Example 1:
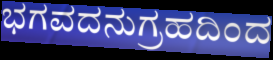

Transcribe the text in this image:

ಭಗವದನುಗ್ರಹದಿಂದ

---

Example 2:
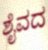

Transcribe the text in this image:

ಶೈವದ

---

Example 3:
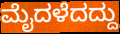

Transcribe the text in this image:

ಮೈದಳೆದದ್ದು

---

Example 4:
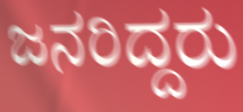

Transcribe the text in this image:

ಜನರಿದ್ದರು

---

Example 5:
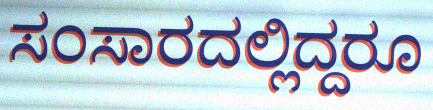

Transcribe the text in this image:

ಸಂಸಾರದಲ್ಲಿದ್ದರೂ